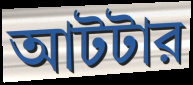
আটটার